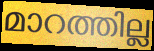
മാറത്തില്ല